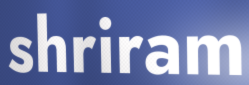
shriram